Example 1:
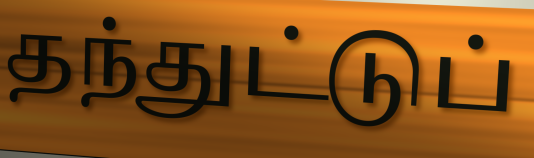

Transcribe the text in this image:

தந்துட்டுப்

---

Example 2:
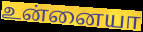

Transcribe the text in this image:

உன்னையா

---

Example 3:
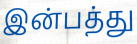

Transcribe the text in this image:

இன்பத்து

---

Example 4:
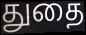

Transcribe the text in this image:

துதை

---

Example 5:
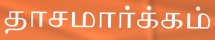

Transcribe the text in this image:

தாசமார்க்கம்